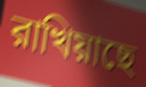
রাখিয়াছে